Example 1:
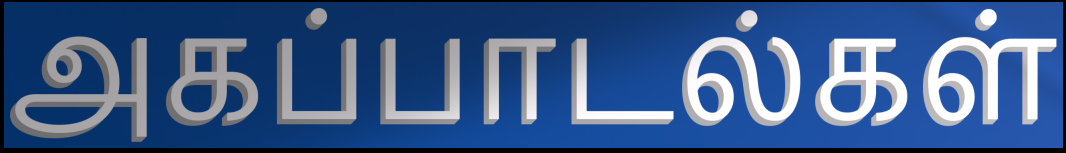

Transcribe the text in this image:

அகப்பாடல்கள்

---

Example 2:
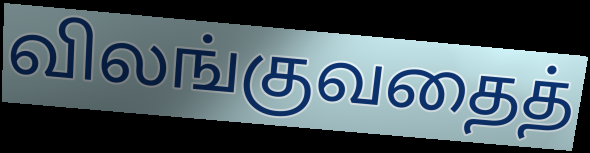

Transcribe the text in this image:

விலங்குவதைத்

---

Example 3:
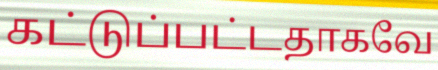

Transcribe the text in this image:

கட்டுப்பட்டதாகவே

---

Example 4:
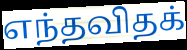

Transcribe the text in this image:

எந்தவிதக்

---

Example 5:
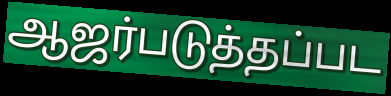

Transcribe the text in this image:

ஆஜர்படுத்தப்பட